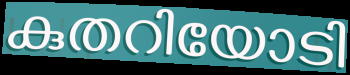
കുതറിയോടി